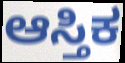
ಆಸ್ತಿಕ